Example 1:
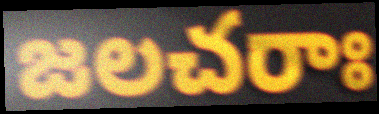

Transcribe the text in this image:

జలచరాః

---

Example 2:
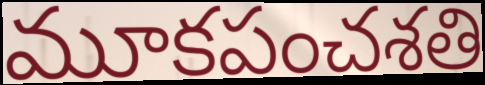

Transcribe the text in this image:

మూకపంచశతి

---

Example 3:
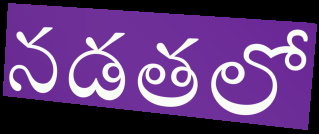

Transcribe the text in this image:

నడతలో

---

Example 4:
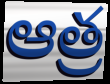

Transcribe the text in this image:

ఆత్ర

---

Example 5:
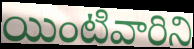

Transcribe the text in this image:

యింటివారిని